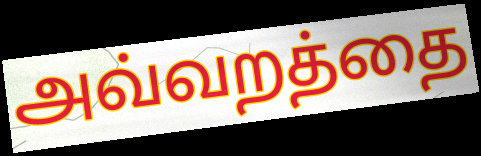
அவ்வறத்தை